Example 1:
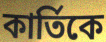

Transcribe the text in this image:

কার্তিকে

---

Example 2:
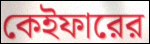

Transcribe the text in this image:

কেইফারের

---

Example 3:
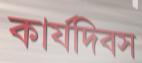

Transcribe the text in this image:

কার্যদিবস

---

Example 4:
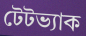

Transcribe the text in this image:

টেটভ্যাক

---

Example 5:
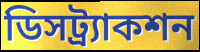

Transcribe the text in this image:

ডিসট্র্যাকশন